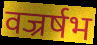
वज्रर्षभ